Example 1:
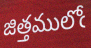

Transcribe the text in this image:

జిత్తములోఁ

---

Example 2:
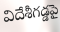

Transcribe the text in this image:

విదేశీగడ్డపై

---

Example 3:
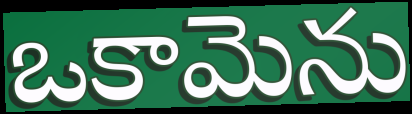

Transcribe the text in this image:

ఒకామెను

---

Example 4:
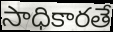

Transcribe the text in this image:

సాధికారతే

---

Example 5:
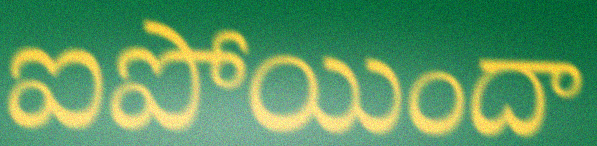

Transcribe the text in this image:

ఐపోయిందా